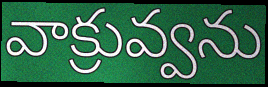
వాక్రువ్వను